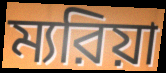
ম্যরিয়া